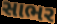
સાભર